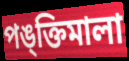
পঙ্ক্তিমালা